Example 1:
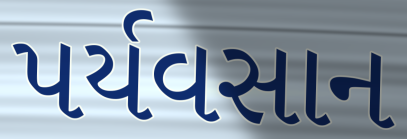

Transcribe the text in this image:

પર્યવસાન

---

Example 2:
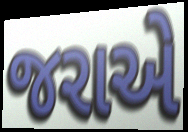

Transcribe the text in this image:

જરાએ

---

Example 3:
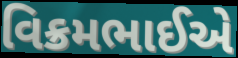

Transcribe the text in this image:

વિક્રમભાઈએ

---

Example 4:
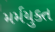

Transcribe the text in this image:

મર્મયુક્ત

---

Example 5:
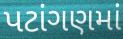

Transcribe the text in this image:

પટાંગણમાં